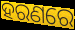
ହରଣରେ